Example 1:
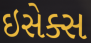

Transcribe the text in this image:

ઇસેક્સ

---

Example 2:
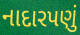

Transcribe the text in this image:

નાદારપણું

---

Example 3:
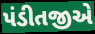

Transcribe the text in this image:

પંડીતજીએ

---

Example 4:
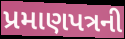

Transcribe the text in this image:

પ્રમાણપત્રની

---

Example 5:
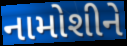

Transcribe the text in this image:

નામોશીને